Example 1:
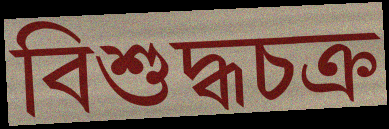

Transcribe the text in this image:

বিশুদ্ধচক্র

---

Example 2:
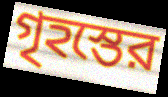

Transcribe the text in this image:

গৃহস্তের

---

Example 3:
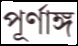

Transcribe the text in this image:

পূর্ণাঙ্গ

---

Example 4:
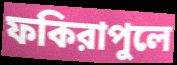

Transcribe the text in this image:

ফকিরাপুলে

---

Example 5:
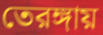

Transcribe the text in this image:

তেরঙ্গায়